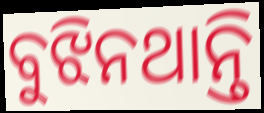
ବୁଝିନଥାନ୍ତି